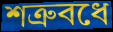
শত্রুবধে